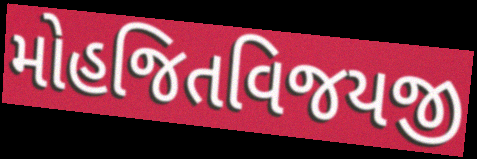
મોહજિતવિજયજી